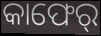
କାଫେର୍